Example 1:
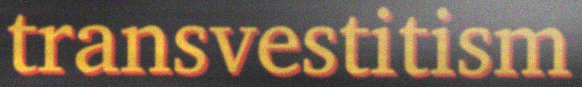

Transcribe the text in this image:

transvestitism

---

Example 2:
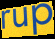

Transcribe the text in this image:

rup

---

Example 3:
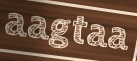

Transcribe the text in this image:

aagtaa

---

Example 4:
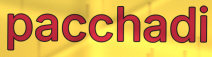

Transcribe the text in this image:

pacchadi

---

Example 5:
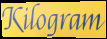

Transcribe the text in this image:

Kilogram